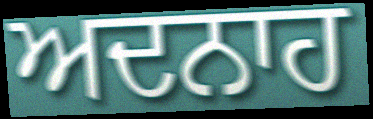
ਅਦਨਾਹ